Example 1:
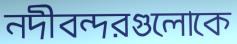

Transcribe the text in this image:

নদীবন্দরগুলোকে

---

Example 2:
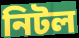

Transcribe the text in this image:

নিটল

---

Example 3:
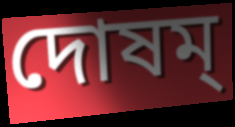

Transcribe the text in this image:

দোষম্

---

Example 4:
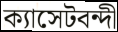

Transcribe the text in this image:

ক্যাসেটবন্দী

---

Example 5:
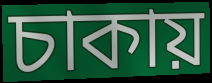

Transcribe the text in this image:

চাকায়